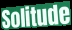
Solitude